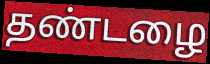
தண்டழை